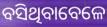
ବସିଥିବାବେଳେ